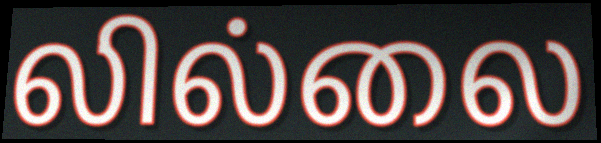
லில்லை